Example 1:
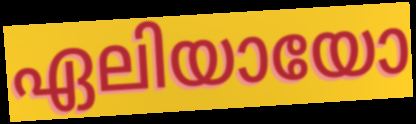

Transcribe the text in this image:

ഏലിയായോ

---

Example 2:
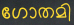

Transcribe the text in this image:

ഗോതമി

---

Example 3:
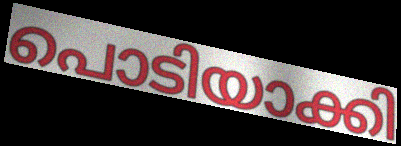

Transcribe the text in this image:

പൊടിയാക്കി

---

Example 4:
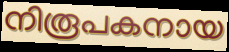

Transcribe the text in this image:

നിരൂപകനായ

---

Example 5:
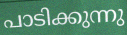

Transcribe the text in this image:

പാടിക്കുന്നു